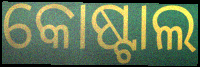
କୋଷ୍ଟାଲ